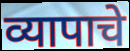
व्यापाचे